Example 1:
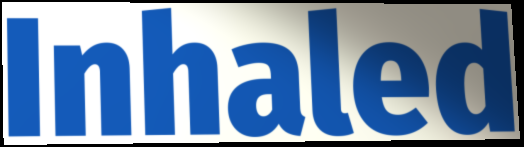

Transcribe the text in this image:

Inhaled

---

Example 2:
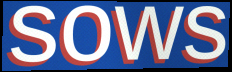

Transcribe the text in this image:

sows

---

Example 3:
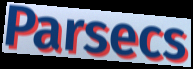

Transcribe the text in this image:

Parsecs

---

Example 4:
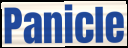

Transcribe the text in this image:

Panicle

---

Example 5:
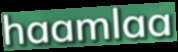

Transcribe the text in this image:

haamlaa